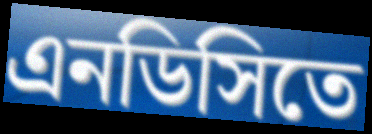
এনডিসিতে